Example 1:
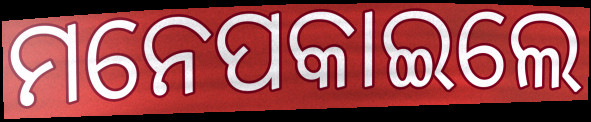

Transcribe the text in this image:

ମନେପକାଇଲେ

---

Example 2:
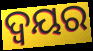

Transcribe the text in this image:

ଦ୍ଵୟର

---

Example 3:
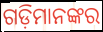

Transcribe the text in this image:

ଗଡ଼ିମାନଙ୍କର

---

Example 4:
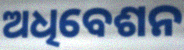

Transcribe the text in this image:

ଅଧିବେଶନ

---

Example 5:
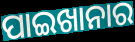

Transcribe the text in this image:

ପାଇଖାନାର